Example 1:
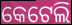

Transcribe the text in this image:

କେଟେଲି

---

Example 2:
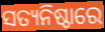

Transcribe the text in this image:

ସତ୍ୟନିଷ୍ଠାରେ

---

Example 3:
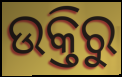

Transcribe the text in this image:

ଉକ୍ତିରୁ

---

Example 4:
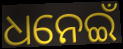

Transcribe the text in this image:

ଧନେଇଁ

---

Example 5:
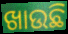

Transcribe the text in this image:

ଖାଉଛି